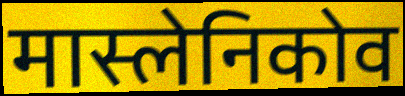
मास्लेनिकोव